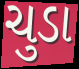
ચુડા